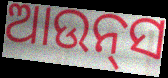
ଆଉନ୍‍ସ